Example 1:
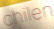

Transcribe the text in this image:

chilen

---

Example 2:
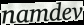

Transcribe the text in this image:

namdev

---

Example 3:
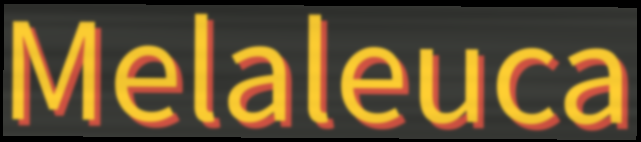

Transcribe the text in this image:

Melaleuca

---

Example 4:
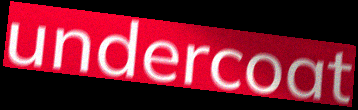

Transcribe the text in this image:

undercoat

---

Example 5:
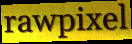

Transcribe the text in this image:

rawpixel